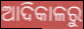
ଆଦିକାଳରୁ